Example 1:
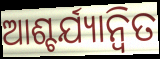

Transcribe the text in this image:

ଆଶ୍ଚର୍ଯ୍ୟାନ୍ୱିତ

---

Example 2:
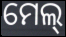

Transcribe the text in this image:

ମେଲ୍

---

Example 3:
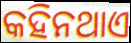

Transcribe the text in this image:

କହିନଥାଏ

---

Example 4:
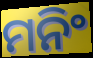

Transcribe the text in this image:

ମନିଂ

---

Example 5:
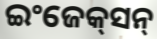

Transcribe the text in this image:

ଇଂଜେକ୍‌ସନ୍